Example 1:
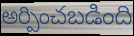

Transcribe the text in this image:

అర్పించబడింది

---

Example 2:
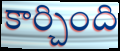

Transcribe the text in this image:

కార్చింది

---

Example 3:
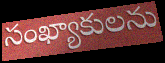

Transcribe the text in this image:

సంఖ్యాకులను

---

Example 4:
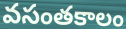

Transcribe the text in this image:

వసంతకాలం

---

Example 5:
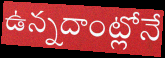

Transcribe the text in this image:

ఉన్నదాంట్లోనే